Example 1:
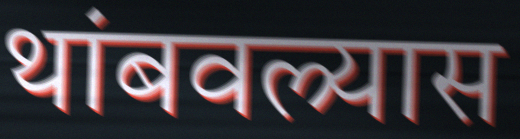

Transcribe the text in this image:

थांबवल्यास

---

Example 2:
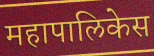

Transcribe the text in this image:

महापालिकेस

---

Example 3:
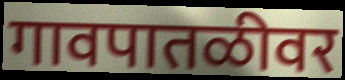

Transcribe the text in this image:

गावपातळीवर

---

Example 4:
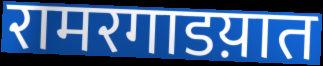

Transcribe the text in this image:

रामरगाडय़ात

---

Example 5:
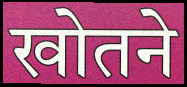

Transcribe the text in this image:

खोतने